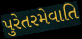
પુરેતરમેવાતિ